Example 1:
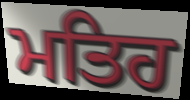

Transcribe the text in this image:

ਮਤਿਹ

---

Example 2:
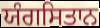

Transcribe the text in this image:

ਯੰਗਸਿਤਾਨ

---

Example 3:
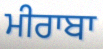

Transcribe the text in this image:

ਮੀਰਾਬਾ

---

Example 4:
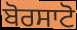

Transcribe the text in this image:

ਬੋਰਸਾਟੋ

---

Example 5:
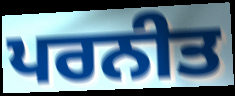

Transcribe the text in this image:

ਪਰਨੀਤ